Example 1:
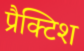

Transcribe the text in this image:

प्रैक्टिश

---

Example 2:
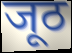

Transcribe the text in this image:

जूठ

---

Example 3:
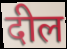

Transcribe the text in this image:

दील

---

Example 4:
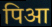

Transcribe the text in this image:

पिआ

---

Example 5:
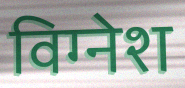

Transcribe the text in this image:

विग्‍नेश